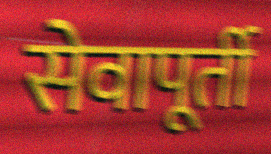
सेवापूर्ती